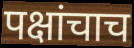
पक्षांचाच